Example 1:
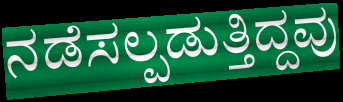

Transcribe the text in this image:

ನಡೆಸಲ್ಪಡುತ್ತಿದ್ದವು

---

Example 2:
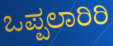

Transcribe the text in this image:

ಒಪ್ಪಲಾರಿರಿ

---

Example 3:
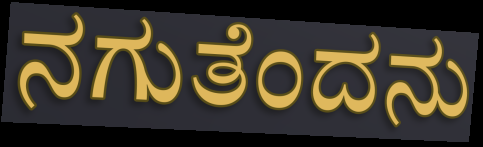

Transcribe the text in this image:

ನಗುತೆಂದನು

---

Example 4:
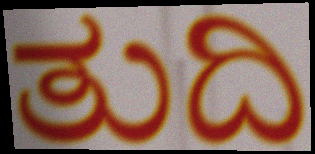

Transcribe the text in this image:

ತುದಿ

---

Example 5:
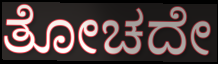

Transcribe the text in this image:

ತೋಚದೇ